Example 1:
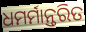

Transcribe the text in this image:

ଧମର୍ମାନ୍ତରିତ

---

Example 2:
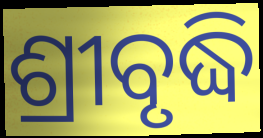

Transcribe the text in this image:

ଶ୍ରୀବୃଦ୍ଧି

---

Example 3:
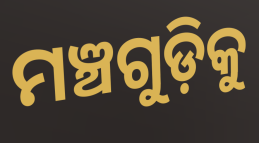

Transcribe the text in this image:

ମଞ୍ଚଗୁଡ଼ିକୁ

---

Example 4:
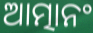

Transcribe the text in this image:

ଆତ୍ମାନଂ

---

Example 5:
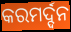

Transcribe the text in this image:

କରମର୍ଦ୍ଦନ